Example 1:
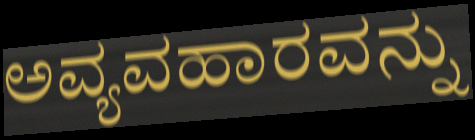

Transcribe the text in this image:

ಅವ್ಯವಹಾರವನ್ನು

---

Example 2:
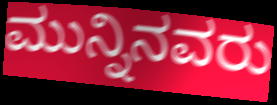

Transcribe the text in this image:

ಮುನ್ನಿನವರು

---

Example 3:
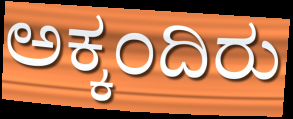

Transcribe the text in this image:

ಅಕ್ಕಂದಿರು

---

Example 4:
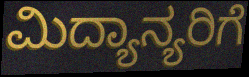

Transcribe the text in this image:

ಮಿದ್ಯಾನ್ಯರಿಗೆ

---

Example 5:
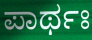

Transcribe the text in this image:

ಪಾರ್ಥಃ